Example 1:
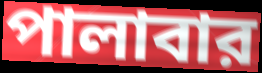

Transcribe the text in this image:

পালাবার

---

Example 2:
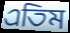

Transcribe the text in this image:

এতিম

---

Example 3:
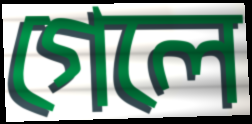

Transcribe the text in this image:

গেলে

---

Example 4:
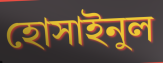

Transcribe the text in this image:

হোসাইনুল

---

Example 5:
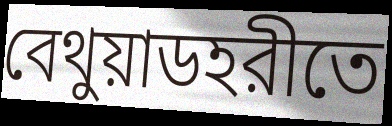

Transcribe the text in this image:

বেথুয়াডহরীতে